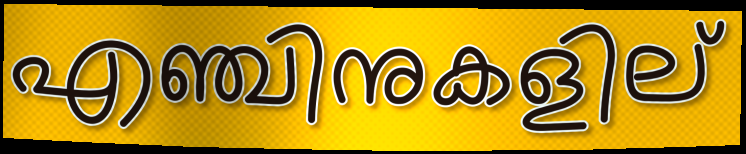
എഞ്ചിനുകളില്